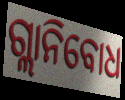
ଗ୍ଲାନିବୋଧ